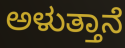
ಅಳುತ್ತಾನೆ